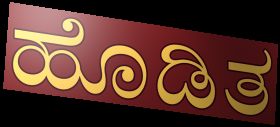
ಹೊಡಿತ